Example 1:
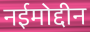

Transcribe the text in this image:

नईमोद्दीन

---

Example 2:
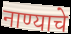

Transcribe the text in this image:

नाण्याचे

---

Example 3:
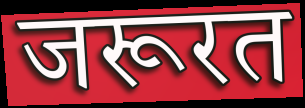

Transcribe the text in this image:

जरूरत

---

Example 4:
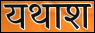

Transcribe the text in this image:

यथाश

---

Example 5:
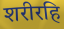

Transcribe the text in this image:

शरीरहि